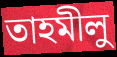
তাহমীলু